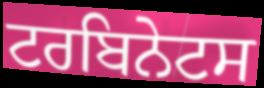
ਟਰਬਿਨੇਟਸ